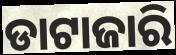
ଡାଟାଜାରି